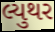
લ્યુથર